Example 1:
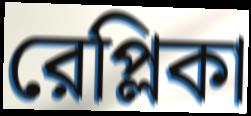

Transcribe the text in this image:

রেপ্লিকা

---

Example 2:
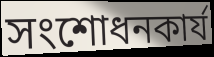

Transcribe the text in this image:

সংশোধনকার্য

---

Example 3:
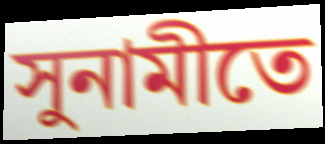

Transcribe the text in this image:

সুনামীতে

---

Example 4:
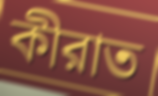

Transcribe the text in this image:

কীরাত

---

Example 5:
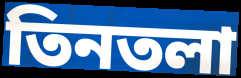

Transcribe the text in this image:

তিনতলা